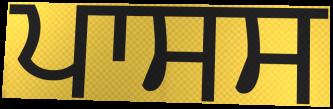
ਪਾਸਸ